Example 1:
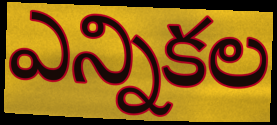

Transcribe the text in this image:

ఎన్నికల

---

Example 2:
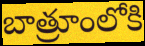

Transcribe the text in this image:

బాత్రూంలోకి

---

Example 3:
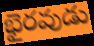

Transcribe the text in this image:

భైరవుడు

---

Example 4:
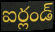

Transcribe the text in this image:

ఐర్లండ్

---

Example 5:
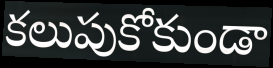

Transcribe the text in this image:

కలుపుకోకుండా